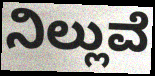
ನಿಲ್ಲುವೆ